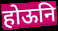
होऊनि